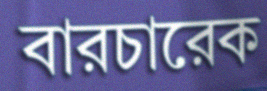
বারচারেক